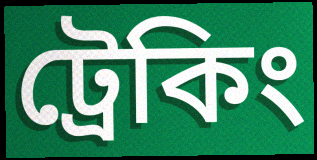
ট্রেকিং